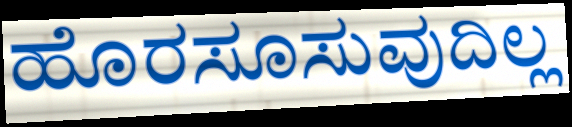
ಹೊರಸೂಸುವುದಿಲ್ಲ